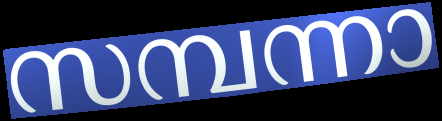
സമ്പന്നാ